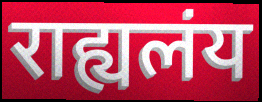
राह्यलंय